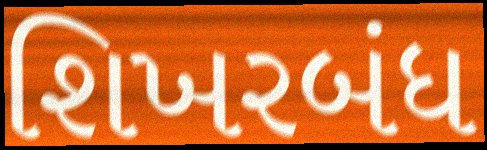
શિખરબંધ